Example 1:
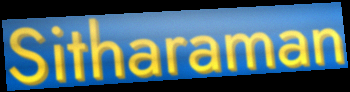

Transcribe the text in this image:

Sitharaman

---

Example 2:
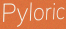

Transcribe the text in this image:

Pyloric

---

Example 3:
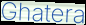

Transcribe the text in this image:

Ghatera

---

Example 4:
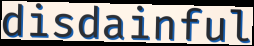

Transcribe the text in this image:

disdainful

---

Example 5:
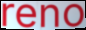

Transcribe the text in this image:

reno